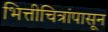
भित्तीचित्रांपासून